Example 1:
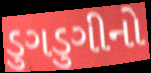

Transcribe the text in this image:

ડુગડુગીનો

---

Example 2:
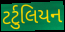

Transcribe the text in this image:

ટર્ટુલિયન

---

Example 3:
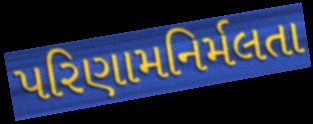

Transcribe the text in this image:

પરિણામનિર્મલતા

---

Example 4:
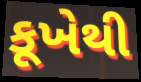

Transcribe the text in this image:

કૂખેથી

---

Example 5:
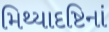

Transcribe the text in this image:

મિથ્યાદષ્ટિનાં